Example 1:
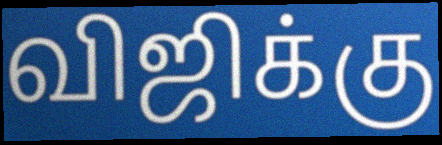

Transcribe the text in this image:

விஜிக்கு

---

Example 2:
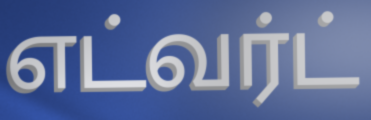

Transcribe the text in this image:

எட்வர்ட்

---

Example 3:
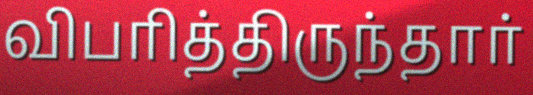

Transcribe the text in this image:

விபரித்திருந்தார்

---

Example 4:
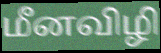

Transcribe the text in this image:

மீனவிழி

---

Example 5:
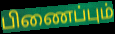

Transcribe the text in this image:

பிணைப்பும்